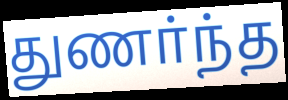
துணர்ந்த